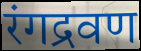
रंगद्रवण